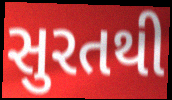
સુરતથી